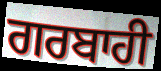
ਗਰਬਾਹੀ